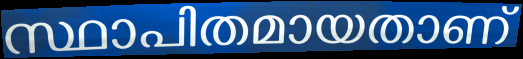
സ്ഥാപിതമായതാണ്